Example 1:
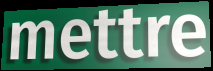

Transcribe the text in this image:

mettre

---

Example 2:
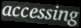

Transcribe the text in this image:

accessing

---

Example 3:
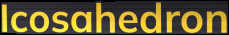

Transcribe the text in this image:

Icosahedron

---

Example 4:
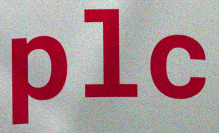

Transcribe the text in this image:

plc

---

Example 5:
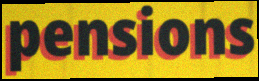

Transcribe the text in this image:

pensions